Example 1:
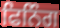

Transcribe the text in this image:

ਫਿਨਿੰਗ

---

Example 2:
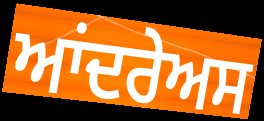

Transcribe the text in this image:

ਆਂਦਰੇਅਸ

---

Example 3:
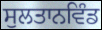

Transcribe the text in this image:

ਸੁਲਤਾਨਵਿੰਡ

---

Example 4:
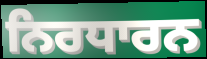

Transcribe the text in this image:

ਨਿਰਧਾਰਨ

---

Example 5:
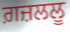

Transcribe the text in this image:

ਗ਼ਜ਼ਲਲੂ